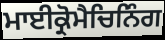
ਮਾਈਕ੍ਰੋਮੈਚਿਨਿੰਗ